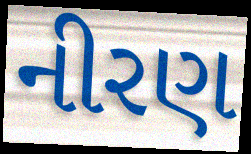
નીરણ